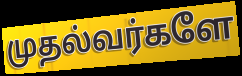
முதல்வர்களே